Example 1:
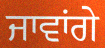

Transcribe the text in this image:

ਜਾਵਾਂਗੇ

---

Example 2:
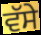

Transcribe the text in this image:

ਵੱਸੇ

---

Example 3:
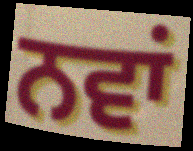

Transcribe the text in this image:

ਨਵਾਂ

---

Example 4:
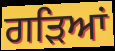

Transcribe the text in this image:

ਗੜਿਆਂ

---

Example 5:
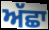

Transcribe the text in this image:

ਅੱਛਾ